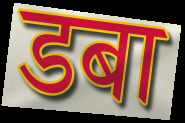
डबा